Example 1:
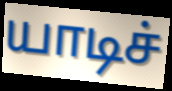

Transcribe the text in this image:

யாடிச்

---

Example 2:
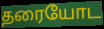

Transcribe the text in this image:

தரையோட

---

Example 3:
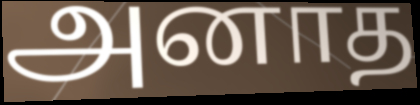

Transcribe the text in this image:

அனாத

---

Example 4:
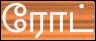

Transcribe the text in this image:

ரோட்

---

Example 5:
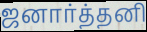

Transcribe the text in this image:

ஜனார்த்தனி